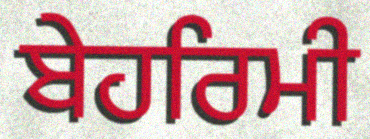
ਬੇਹਰਿਮੀ